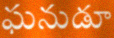
ఘనుడూ